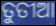
ତୁତୀଆ